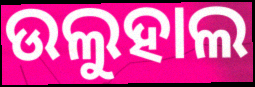
ଉଲୁହାଲ